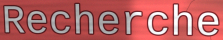
Recherche